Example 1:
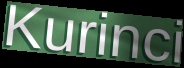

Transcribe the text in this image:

Kurinci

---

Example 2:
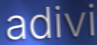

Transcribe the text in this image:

adivi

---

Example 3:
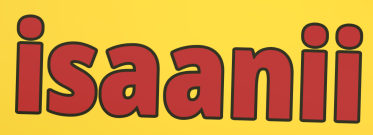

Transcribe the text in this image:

isaanii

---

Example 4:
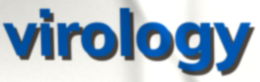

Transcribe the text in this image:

virology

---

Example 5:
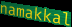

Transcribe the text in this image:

namakkal